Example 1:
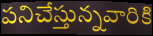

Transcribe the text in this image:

పనిచేస్తున్నవారికి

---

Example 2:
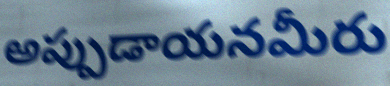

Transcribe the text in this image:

అప్పుడాయనమీరు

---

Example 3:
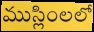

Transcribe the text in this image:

ముస్లింలలో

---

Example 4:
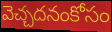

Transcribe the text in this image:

వెచ్చదనంకోసం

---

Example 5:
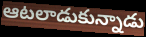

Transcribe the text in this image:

ఆటలాడుకున్నాడు